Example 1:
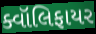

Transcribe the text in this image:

ક્વૉલિફાયર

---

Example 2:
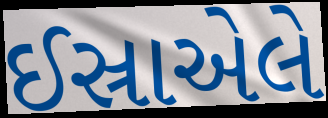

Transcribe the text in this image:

ઈસ્રાએલે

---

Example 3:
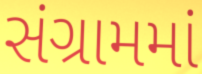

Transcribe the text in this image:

સંગ્રામમાં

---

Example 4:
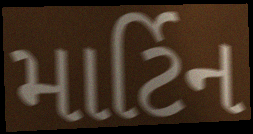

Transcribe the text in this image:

માર્ટિન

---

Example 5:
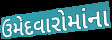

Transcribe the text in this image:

ઉમેદવારોમાંના